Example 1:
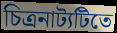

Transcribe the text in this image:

চিত্রনাট্যটিতে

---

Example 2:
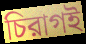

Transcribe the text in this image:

চিরাগই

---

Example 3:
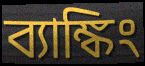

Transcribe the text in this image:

ব্যাঙ্কিং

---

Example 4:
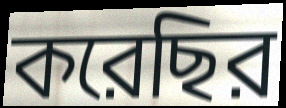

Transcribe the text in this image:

করেছির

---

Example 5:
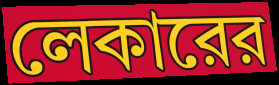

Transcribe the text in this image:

লেকারের